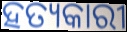
ହତ୍ୟକାରୀ